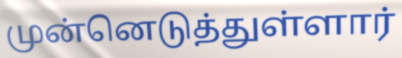
முன்னெடுத்துள்ளார்